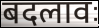
बदलावः